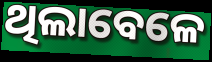
ଥିଲାବେଳେ